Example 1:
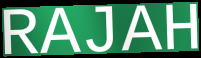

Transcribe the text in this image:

RAJAH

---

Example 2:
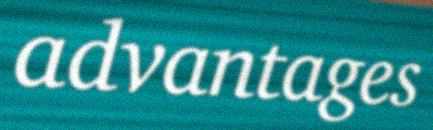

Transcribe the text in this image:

advantages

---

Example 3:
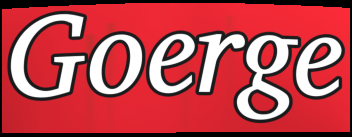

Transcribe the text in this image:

Goerge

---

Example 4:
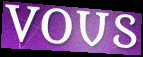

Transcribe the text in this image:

vous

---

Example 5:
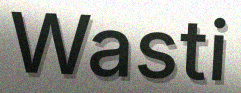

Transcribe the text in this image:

Wasti